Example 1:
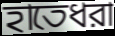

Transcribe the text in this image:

হাতেধরা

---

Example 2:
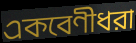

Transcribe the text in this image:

একবেণীধরা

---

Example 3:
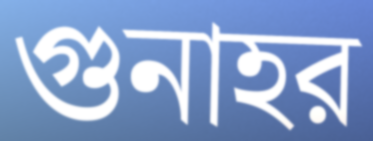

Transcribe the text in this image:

গুনাহর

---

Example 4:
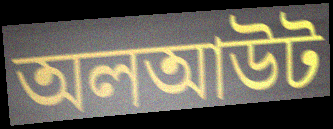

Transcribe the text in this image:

অলআউট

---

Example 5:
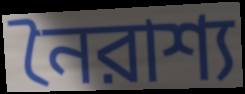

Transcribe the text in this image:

নৈরাশ্য